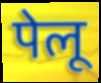
पेलू